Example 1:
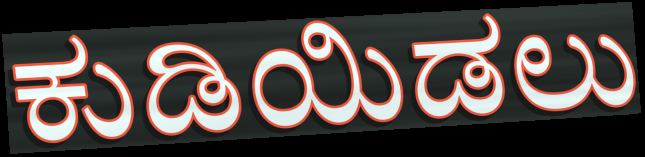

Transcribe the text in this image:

ಕುಡಿಯಿಡಲು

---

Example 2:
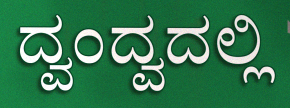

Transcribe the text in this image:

ದ್ವಂದ್ವದಲ್ಲಿ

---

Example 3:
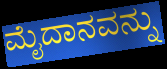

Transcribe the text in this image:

ಮೈದಾನವನ್ನು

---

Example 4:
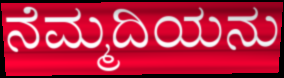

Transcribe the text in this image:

ನೆಮ್ಮದಿಯನು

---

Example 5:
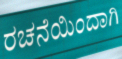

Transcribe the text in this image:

ರಚನೆಯಿಂದಾಗಿ